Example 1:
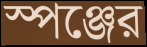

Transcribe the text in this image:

স্পঞ্জের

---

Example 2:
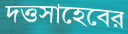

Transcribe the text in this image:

দত্তসাহেবের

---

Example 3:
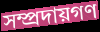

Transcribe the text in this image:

সম্প্রদায়গণ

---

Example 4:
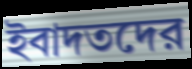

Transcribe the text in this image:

ইবাদতদের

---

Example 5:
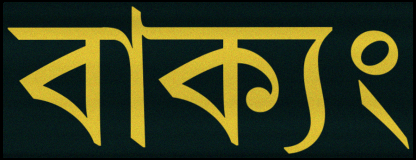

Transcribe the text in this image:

বাক্যং